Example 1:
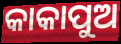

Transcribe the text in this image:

କାକାପୁଅ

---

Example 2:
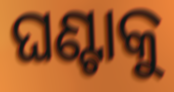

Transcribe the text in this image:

ଘଣ୍ଟାକୁ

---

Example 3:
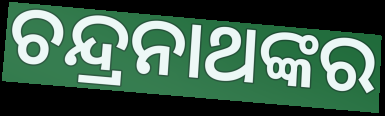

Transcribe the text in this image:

ଚନ୍ଦ୍ରନାଥଙ୍କର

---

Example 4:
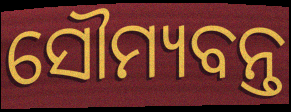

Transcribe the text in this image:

ସୌମ୍ୟବନ୍ତ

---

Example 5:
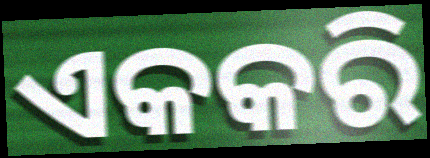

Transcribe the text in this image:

ଏକକରି